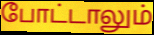
போட்டாலும்